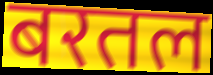
बरतल